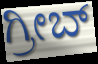
ಗ್ರೀಬ್